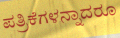
ಪತ್ರಿಕೆಗಳನ್ನಾದರೂ